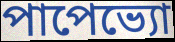
পাপেভ্যো